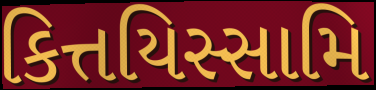
કિત્તયિસ્સામિ